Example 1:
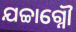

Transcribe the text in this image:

ଯଚ୍ଚାଗ୍ନୌ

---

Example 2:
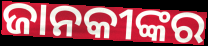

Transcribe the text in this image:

ଜାନକୀଙ୍କର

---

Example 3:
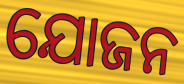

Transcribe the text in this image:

ଯୋଜନ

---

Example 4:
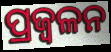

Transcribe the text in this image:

ପ୍ରଜ୍ବଳନ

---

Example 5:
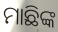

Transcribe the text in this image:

ମାଛିଙ୍କ